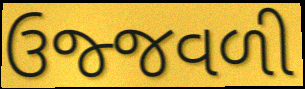
ઉજ્જવળી